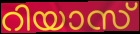
റിയാസ്